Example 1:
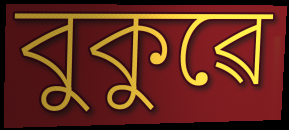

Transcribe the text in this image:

বুকুৱে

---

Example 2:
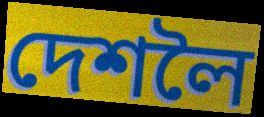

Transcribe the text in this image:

দেশলৈ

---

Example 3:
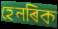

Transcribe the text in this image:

হেনৰিক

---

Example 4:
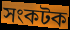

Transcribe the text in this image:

সংকটক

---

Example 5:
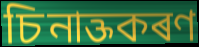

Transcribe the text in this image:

চিনাক্তকৰণ